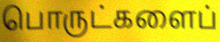
பொருட்களைப்